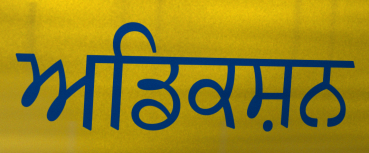
ਅਡਿਕਸ਼ਨ